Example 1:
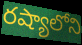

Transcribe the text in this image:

రష్యాలోని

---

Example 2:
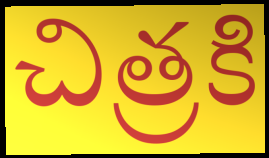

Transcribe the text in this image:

చిత్రకి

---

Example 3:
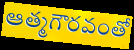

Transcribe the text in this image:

ఆత్మగౌరవంతో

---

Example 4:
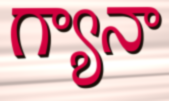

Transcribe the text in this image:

గ్యానా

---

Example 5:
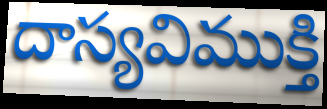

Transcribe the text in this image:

దాస్యవిముక్తి